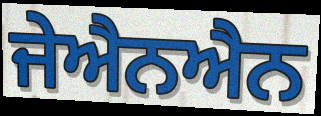
ਜੇਐਨਐਨ